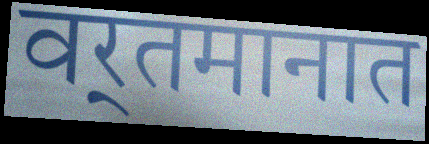
वर्तमानात